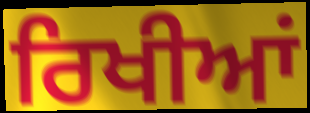
ਰਿਖੀਆਂ